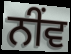
ਨੀਂਵ